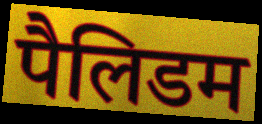
पैलिडम